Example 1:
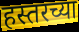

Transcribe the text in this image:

हस्तरच्या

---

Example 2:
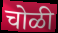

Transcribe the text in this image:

चोळी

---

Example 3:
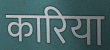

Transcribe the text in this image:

कारिया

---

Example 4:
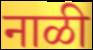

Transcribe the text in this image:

नाळी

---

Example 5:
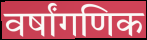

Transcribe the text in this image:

वर्षांगणिक